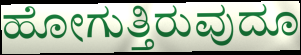
ಹೋಗುತ್ತಿರುವುದೂ